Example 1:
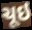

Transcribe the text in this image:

ચૂઇ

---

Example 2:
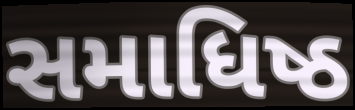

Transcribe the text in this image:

સમાધિષ્ઠ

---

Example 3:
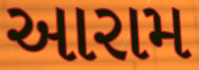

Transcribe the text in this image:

આરામ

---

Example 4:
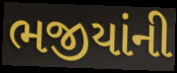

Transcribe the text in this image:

ભજીયાંની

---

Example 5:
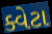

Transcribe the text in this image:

ક્વેટા